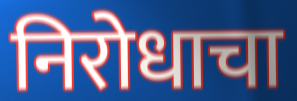
निरोधाचा